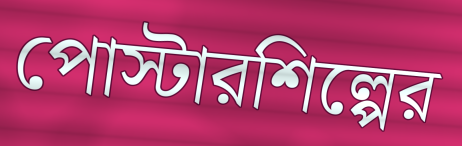
পোস্টারশিল্পের